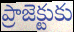
ప్రాజెక్టుకు